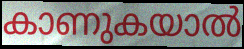
കാണുകയാൽ